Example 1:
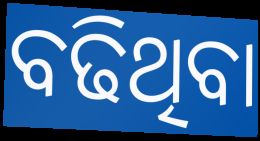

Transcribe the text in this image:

ବଢିଥିବା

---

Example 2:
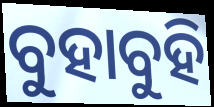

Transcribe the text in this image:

ବୁହାବୁହି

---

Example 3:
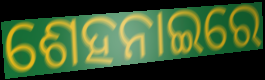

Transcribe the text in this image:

ଶେହନାଇରେ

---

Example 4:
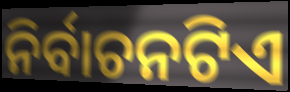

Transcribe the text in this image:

ନିର୍ବାଚନଟିଏ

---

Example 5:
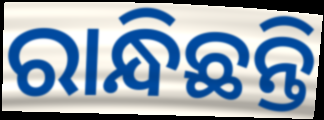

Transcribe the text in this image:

ରାନ୍ଧିଛନ୍ତି